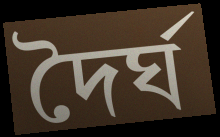
দৈৰ্ঘ